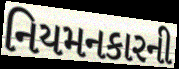
નિયમનકારની